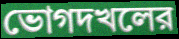
ভোগদখলের